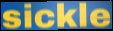
sickle